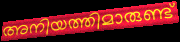
അനിയത്തിമാരുണ്ട്